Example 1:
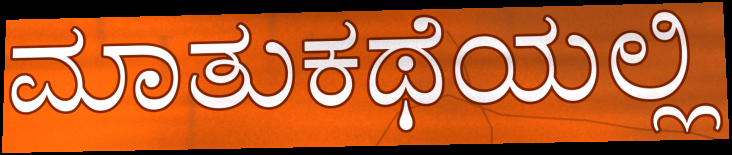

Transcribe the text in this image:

ಮಾತುಕಥೆಯಲ್ಲಿ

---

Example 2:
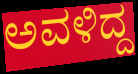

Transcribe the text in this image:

ಅವಳಿದ್ದ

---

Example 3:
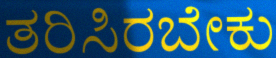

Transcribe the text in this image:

ತರಿಸಿರಬೇಕು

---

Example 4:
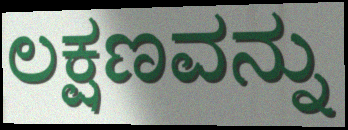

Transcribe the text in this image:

ಲಕ್ಷಣವನ್ನು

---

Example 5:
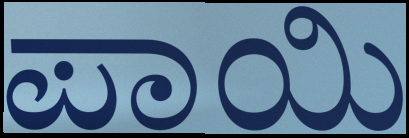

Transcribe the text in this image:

ಪಾಯಿ